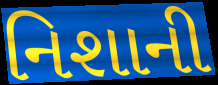
નિશાની